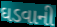
ઘડવાની